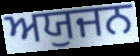
ਅਯੁਜਨ